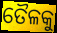
ତୈଳକୁ